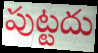
పుట్టదు